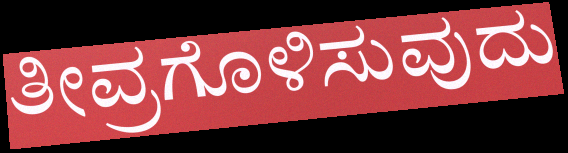
ತೀವ್ರಗೊಳಿಸುವುದು